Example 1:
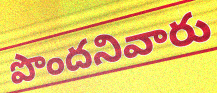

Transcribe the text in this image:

పొందనివారు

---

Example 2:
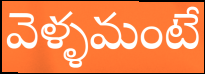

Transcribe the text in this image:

వెళ్ళమంటే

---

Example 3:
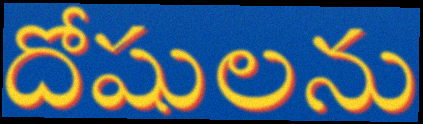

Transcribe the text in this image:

దోషులను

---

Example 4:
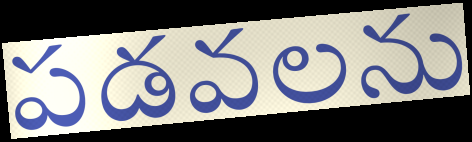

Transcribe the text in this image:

పడవలను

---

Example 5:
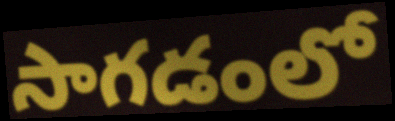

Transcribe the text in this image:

సాగడంలో